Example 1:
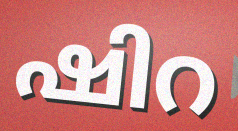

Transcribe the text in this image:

ഷിറ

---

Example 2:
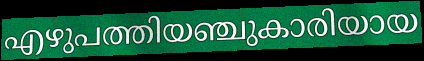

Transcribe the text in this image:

എഴുപത്തിയഞ്ചുകാരിയായ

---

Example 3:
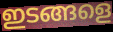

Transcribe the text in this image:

ഇടങ്ങളെ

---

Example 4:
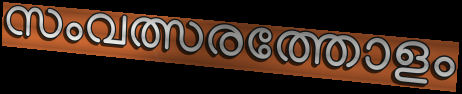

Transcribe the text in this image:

സംവത്സരത്തോളം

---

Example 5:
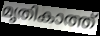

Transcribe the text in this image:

മൃതികാത്ത്